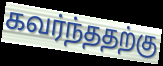
கவர்ந்ததற்கு